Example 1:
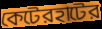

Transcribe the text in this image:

কেটেরহাটের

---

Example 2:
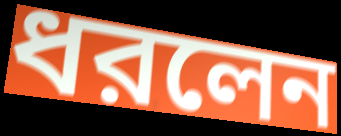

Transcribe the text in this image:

ধরলেন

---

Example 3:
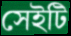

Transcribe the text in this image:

সেইটি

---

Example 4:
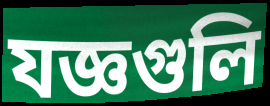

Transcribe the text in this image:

যজ্ঞগুলি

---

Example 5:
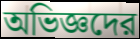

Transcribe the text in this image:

অভিজ্ঞদের